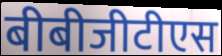
बीबीजीटीएस